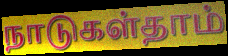
நாடுகள்தாம்